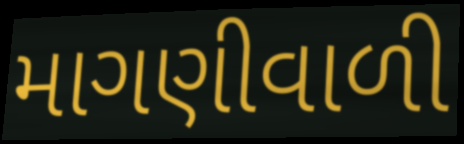
માગણીવાળી